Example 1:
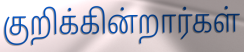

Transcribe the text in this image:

குறிக்கின்றார்கள்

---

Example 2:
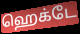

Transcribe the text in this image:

ஹெக்டே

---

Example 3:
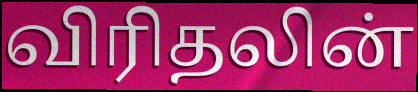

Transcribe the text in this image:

விரிதலின்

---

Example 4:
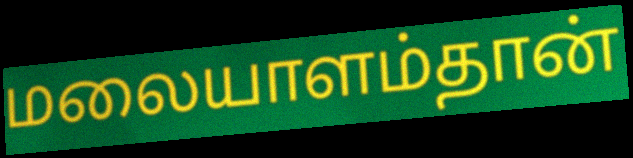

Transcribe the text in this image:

மலையாளம்தான்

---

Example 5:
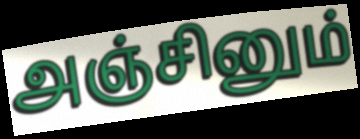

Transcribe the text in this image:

அஞ்சினும்